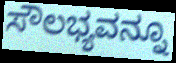
ಸೌಲಭ್ಯವನ್ನೂ